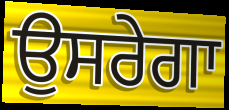
ਉਸਰੇਗਾ